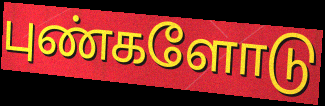
புண்களோடு